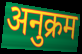
अनुक्रम